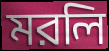
মরলি